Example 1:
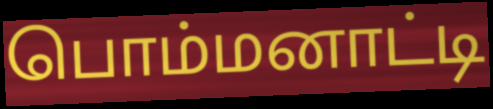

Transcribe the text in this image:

பொம்மனாட்டி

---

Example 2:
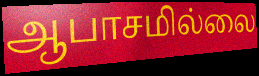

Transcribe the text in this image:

ஆபாசமில்லை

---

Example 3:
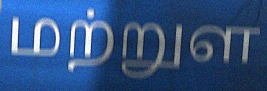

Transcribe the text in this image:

மற்றுள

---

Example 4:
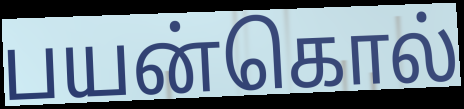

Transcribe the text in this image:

பயன்கொல்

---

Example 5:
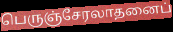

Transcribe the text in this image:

பெருஞ்சேரலாதனைப்